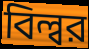
বিল্বর